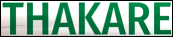
THAKARE